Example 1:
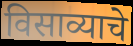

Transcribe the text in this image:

विसाव्याचे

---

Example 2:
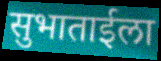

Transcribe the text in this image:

सुभाताईला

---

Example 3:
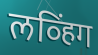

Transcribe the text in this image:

लव्हिंग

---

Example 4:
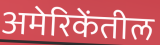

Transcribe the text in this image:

अमेरिकेंतील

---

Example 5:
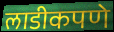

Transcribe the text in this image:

लाडीकपणे